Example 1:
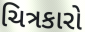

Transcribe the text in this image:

ચિત્રકારો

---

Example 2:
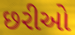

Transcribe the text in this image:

છરીઓ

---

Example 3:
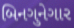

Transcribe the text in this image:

બિનગુનેગાર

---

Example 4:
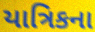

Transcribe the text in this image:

યાત્રિકના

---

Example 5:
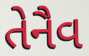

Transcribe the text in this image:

તેનૈવ